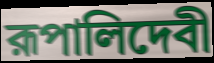
রূপালিদেবী